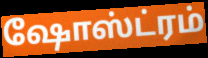
ஷோஸ்ட்ரம்